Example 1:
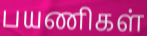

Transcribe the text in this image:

பயணிகள்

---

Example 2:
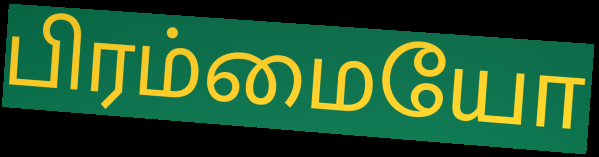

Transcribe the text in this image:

பிரம்மையோ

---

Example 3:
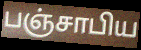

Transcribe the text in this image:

பஞ்சாபிய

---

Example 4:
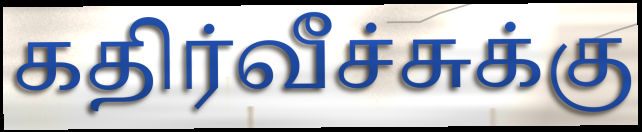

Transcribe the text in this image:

கதிர்வீச்சுக்கு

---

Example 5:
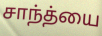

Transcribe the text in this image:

சாந்த்யை